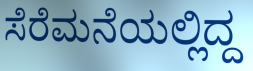
ಸೆರೆಮನೆಯಲ್ಲಿದ್ದ